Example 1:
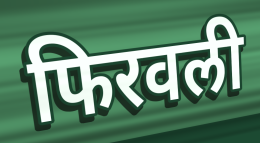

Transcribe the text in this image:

फिरवली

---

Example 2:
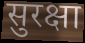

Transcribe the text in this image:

सुरक्षा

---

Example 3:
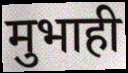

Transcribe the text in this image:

मुभाही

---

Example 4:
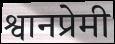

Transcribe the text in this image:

श्वानप्रेमी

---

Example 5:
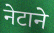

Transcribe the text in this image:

नेटाने